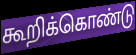
கூறிக்கொண்டு